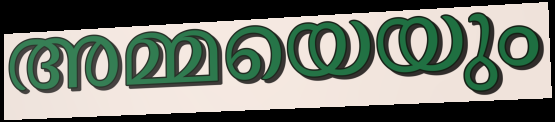
അമ്മയെയും